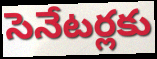
సెనేటర్లకు